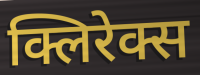
क्लिरेक्स